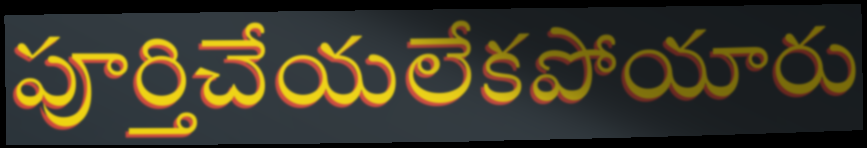
పూర్తిచేయలేకపోయారు